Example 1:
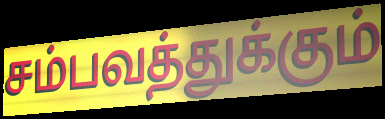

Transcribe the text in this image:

சம்பவத்துக்கும்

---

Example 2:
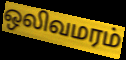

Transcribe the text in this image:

ஒலிவமரம்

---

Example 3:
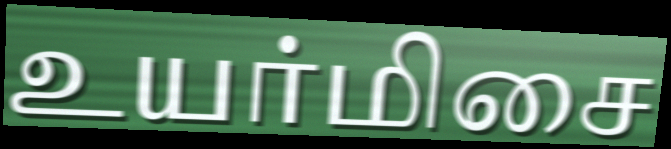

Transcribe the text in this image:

உயர்மிசை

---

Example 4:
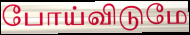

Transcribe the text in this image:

போய்விடுமே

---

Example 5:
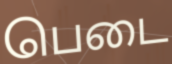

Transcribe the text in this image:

பெடை